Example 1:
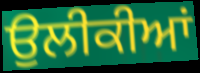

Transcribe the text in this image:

ਉਲੀਕੀਆਂ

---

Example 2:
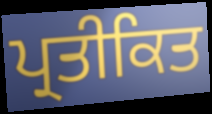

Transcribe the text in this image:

ਪ੍ਰਤੀਕਿਤ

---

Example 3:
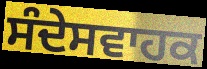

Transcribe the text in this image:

ਸੰਦੇਸਵਾਹਕ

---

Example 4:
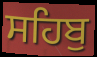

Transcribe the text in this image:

ਸਹਿਬੁ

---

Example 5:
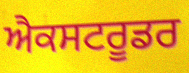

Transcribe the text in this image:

ਐਕਸਟਰੂਡਰ